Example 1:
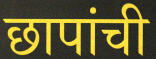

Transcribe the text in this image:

छापांची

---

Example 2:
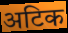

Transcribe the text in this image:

अटिक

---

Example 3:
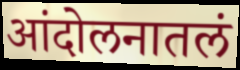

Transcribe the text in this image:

आंदोलनातलं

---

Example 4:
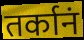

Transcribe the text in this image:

तर्कानं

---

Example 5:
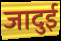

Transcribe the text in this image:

जादुई